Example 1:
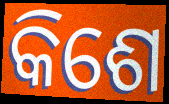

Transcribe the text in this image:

କିଶେ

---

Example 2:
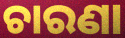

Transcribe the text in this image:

ଚାରଣା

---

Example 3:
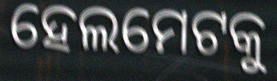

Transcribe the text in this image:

ହେଲମେଟକୁ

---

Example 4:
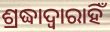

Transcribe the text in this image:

ଶ୍ରଦ୍ଧାଦ୍ୱାରାହିଁ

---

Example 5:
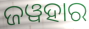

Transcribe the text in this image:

ଜୱହାର